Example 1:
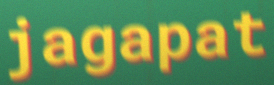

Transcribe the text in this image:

jagapat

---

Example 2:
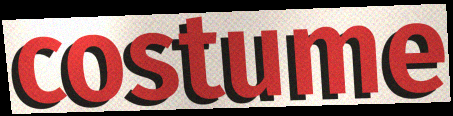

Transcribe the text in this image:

costume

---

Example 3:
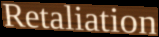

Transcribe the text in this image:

Retaliation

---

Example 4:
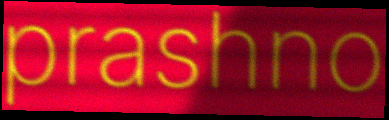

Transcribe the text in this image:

prashno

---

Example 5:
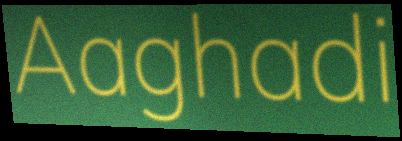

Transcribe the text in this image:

Aaghadi